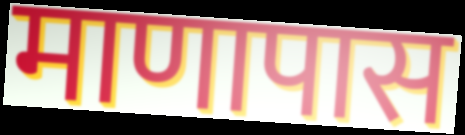
माणापास